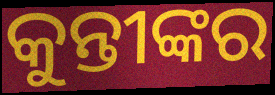
କୁନ୍ତୀଙ୍କର